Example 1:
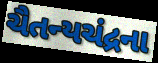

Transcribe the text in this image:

ચૈતન્યચંદ્રના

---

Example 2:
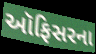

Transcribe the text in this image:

ઑફિસરના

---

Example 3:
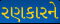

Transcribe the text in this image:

રણકારને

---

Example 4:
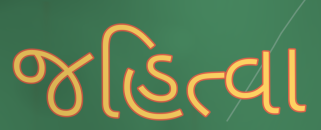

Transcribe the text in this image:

જહિત્વા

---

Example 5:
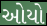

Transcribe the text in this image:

ઓયો